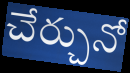
చేర్చునో